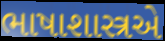
ભાષાશાસ્ત્રએ